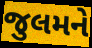
જુલમને